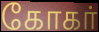
கோகர்